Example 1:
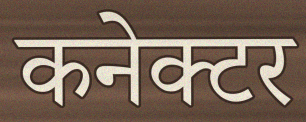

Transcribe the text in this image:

कनेक्टर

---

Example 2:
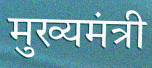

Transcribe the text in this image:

मुख्यमंत्री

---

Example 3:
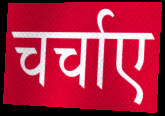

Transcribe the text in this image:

चर्चाए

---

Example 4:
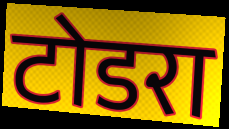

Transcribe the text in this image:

टोडरा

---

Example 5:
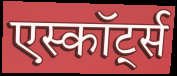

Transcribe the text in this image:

एस्कॉर्ट्स